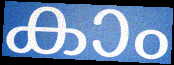
കാം